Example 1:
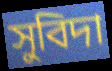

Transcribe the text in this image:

সুবিদা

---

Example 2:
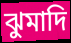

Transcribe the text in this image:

ঝুমাদি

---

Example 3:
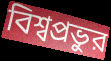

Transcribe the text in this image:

বিশ্বপ্রভুর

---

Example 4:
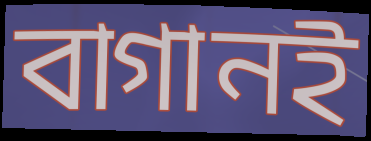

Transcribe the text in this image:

বাগানই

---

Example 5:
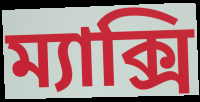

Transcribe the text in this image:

ম্যাক্সি